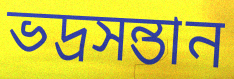
ভদ্রসন্তান